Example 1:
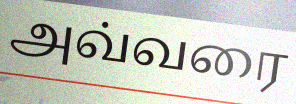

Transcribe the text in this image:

அவ்வரை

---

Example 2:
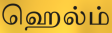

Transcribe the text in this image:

ஹெல்ம்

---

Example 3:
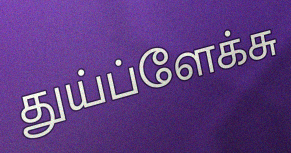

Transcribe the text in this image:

துய்ப்ளேக்சு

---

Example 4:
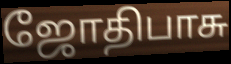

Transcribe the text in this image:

ஜோதிபாசு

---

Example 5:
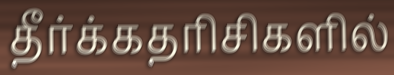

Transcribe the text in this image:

தீர்க்கதரிசிகளில்